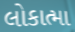
લોકાત્મા